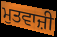
ਮੁਤਵਾਜ਼ੀ